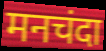
मनचंदा